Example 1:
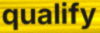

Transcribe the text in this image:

qualify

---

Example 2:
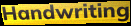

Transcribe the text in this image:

Handwriting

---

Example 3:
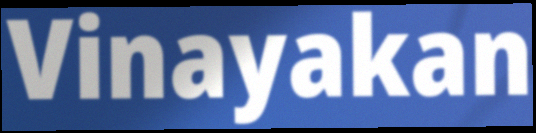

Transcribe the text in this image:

Vinayakan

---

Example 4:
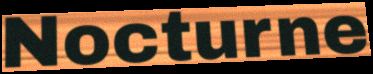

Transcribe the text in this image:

Nocturne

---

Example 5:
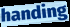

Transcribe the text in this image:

handing